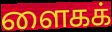
ளைகக்